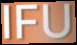
IFU